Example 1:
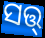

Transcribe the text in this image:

ସତ୍ତ୍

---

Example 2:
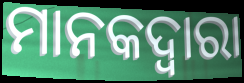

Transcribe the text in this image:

ମାନକଦ୍ୱାରା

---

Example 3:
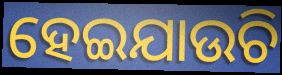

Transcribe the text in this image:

ହେଇଯାଉଚି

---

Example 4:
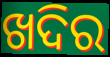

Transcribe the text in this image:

ଖଦିର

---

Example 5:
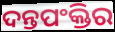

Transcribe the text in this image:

ଦନ୍ତପଂକ୍ତିର